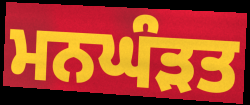
ਮਨਘੰੜਤ